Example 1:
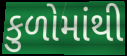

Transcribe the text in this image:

કુળોમાંથી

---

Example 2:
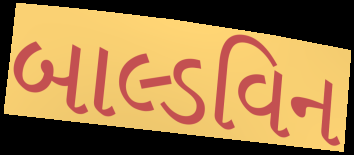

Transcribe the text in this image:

બાલ્ડવિન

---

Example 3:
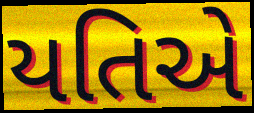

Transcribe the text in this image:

યતિએ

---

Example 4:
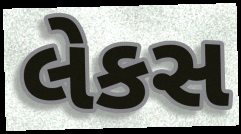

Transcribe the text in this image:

લેકસ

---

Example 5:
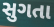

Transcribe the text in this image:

સુગતા